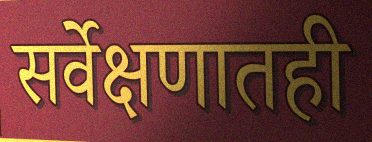
सर्वेक्षणातही